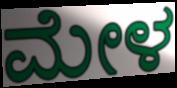
ಮೇಳ